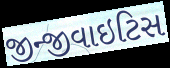
જીન્જીવાઇટિસ